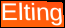
Elting